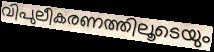
വിപുലീകരണത്തിലൂടെയും